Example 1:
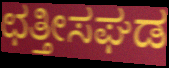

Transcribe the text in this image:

ಛತ್ತೀಸಘಡ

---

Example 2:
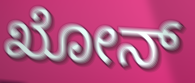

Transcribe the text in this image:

ಖೋನ್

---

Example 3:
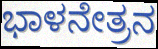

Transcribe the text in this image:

ಭಾಳನೇತ್ರನ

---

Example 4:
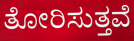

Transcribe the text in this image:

ತೋರಿಸುತ್ತವೆ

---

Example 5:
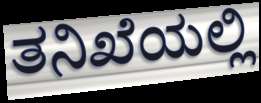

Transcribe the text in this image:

ತನಿಖೆಯಲ್ಲಿ